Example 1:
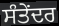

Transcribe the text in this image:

ਸੰਤੇਂਦਰ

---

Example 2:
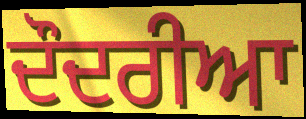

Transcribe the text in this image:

ਦੌਦਰੀਆ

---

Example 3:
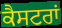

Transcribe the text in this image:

ਕੈਸਟਰਾਂ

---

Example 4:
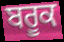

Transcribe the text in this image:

ਬਰੂਕ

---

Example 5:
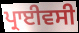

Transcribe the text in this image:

ਪ੍ਰਾਈਵਸੀ